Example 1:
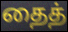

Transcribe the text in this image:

தைத்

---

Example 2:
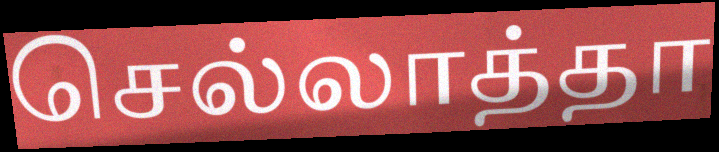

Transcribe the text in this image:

செல்லாத்தா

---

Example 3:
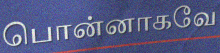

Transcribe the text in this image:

பொன்னாகவே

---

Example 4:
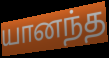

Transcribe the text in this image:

யானந்த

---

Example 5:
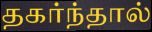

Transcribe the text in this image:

தகர்ந்தால்